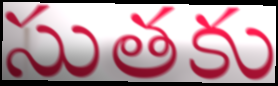
సుతకు